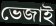
ভেজাই